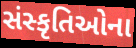
સંસ્કૃતિઓના